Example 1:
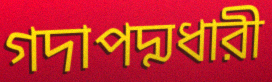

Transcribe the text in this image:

গদাপদ্মধারী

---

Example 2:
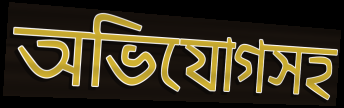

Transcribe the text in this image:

অভিযোগসহ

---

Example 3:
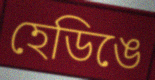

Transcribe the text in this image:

হেডিঙে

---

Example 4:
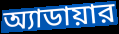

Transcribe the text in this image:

অ্যাডায়ার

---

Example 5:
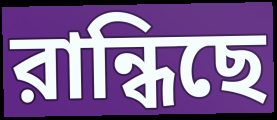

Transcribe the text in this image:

রান্ধিছে